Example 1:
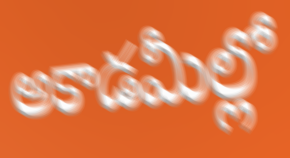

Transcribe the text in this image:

అకాడమీల్లో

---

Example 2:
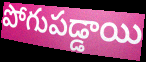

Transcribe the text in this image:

పోగుపడ్డాయి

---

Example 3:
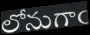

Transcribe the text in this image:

లోనుగాఁ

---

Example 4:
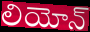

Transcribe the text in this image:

లియోన్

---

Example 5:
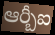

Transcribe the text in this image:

ఆర్బీఐ